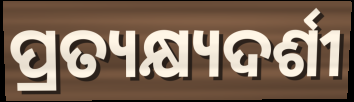
ପ୍ରତ୍ୟକ୍ଷ୍ୟଦର୍ଶୀ